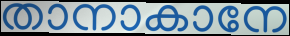
താനാകാനേ